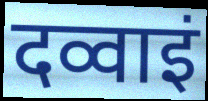
दव्वाइं